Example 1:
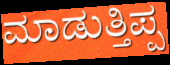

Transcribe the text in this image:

ಮಾಡುತ್ತಿಪ್ಪ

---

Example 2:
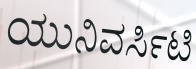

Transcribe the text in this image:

ಯುನಿವರ್ಸಿಟಿ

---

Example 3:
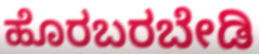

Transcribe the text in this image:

ಹೊರಬರಬೇಡಿ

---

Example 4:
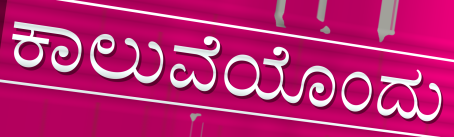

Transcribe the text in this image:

ಕಾಲುವೆಯೊಂದು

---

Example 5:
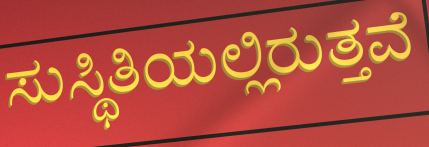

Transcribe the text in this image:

ಸುಸ್ಥಿತಿಯಲ್ಲಿರುತ್ತವೆ